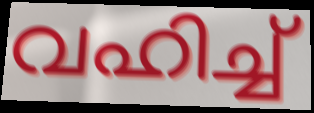
വഹിച്ച്